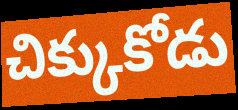
చిక్కుకోడు